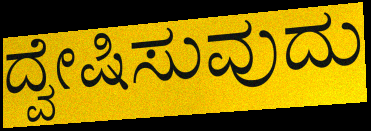
ದ್ವೇಷಿಸುವುದು